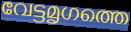
വേട്ടമൃഗത്തെ